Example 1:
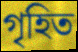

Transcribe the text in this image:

গৃহিত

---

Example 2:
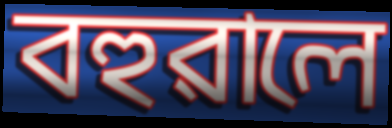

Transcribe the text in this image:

বহুৱালে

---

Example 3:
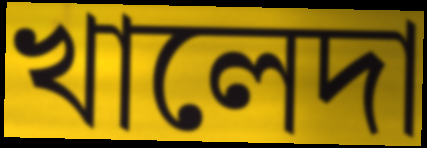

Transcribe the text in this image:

খালেদা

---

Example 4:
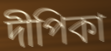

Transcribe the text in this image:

দীপিকা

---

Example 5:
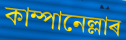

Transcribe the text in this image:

কাম্পানেল্লাৰ